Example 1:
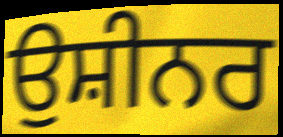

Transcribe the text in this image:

ਉਸ਼ੀਨਰ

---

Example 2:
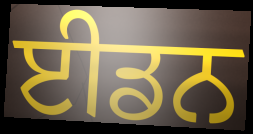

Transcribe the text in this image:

ਈਡਨ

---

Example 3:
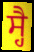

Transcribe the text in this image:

ਸ੍ਹੈ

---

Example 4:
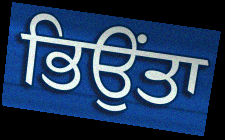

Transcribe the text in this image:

ਭਿਉਂਤਾ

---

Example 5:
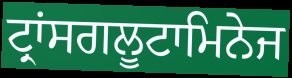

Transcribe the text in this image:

ਟ੍ਰਾਂਸਗਲੂਟਾਮਿਨੇਜ